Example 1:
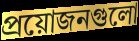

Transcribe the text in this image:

প্রয়োজনগুলো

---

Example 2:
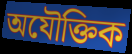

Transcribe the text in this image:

অযৌক্তিক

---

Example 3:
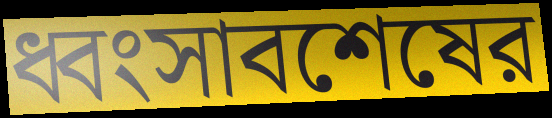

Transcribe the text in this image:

ধ্বংসাবশেষের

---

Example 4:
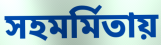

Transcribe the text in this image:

সহমর্মিতায়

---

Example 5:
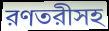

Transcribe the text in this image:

রণতরীসহ